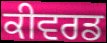
ਕੀਵਰਡ